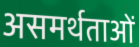
असमर्थताओं